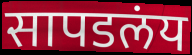
सापडलंय